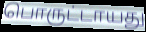
பொருட்டாயது